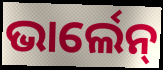
ଭାର୍ଲେନ୍